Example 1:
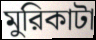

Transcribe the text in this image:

মুরিকাটা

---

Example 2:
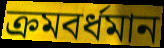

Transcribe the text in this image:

ক্রমবর্ধমান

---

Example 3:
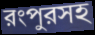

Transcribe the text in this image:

রংপুরসহ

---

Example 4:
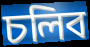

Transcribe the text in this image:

চলিব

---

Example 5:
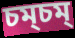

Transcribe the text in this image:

চম্চম্